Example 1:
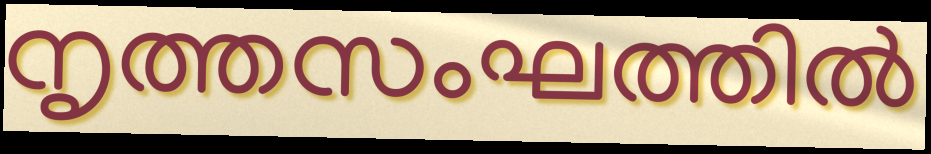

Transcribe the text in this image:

നൃത്തസംഘത്തിൽ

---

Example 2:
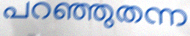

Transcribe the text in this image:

പറഞ്ഞുതന്ന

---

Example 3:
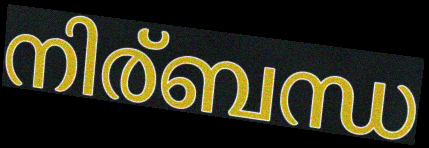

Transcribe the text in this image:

നിര്ബന്ധ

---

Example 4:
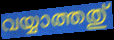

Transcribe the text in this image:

വയ്യാത്തതു്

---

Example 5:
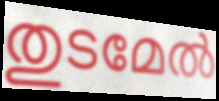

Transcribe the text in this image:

തുടമേൽ